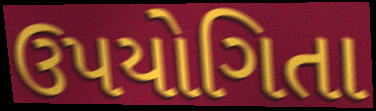
ઉપયોગિતા